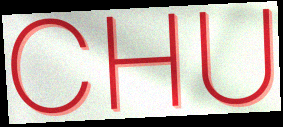
CHU